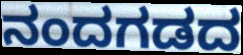
ನಂದಗಡದ